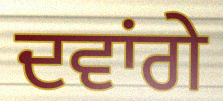
ਦਵਾਂਗੇ